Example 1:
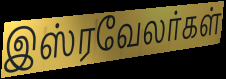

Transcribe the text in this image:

இஸ்ரவேலர்கள்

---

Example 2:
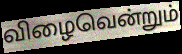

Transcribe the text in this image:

விழைவென்றும்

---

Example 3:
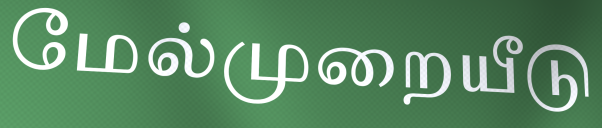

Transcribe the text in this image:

மேல்முறையீடு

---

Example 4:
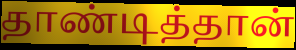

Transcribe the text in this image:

தாண்டித்தான்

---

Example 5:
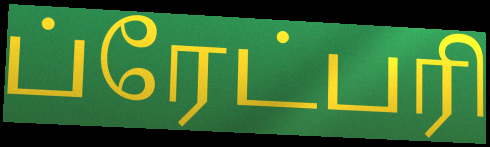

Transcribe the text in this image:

ப்ரேட்பரி